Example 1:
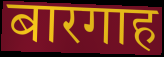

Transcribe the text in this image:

बारगाह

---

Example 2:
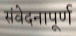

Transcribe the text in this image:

संवेदनापूर्ण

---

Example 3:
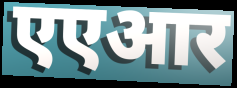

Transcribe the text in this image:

एएआर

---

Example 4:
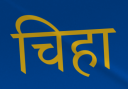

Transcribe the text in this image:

चिहा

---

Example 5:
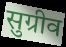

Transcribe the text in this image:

सुग्रीव